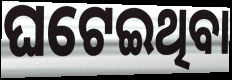
ଘଟେଇଥିବା